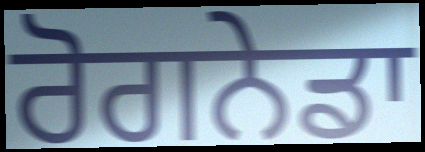
ਰੋਗਨੇਡਾ